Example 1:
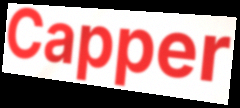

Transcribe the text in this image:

Capper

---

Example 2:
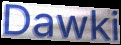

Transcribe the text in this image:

Dawki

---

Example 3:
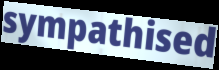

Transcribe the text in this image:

sympathised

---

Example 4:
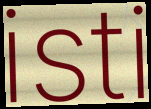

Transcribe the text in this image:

isti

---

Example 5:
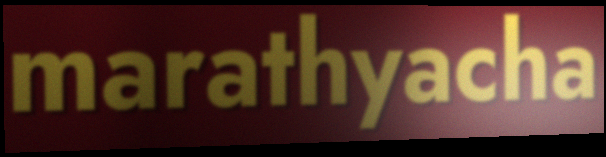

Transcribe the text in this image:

marathyacha